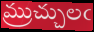
మ్రుచ్చులఁ